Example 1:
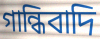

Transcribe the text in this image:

গান্ধিবাদি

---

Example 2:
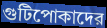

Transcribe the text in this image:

গুটিপোকাদের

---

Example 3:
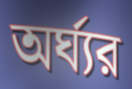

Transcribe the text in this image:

অর্ঘ্যর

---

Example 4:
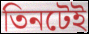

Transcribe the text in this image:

তিনটেই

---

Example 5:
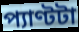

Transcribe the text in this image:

প্যাণ্টটা